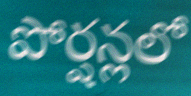
పోర్షన్లలో